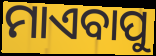
ମାଏବାପୁ